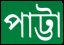
পাট্টা